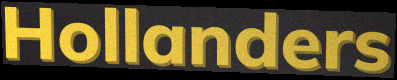
Hollanders